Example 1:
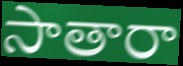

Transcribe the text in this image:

సాతారా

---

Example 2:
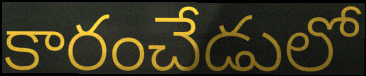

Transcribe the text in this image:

కారంచేడులో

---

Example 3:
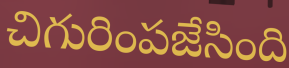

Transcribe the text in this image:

చిగురింపజేసింది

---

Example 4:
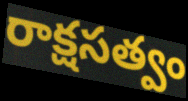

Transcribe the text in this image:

రాక్షసత్వం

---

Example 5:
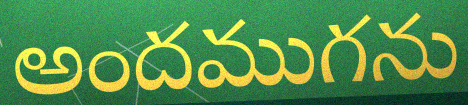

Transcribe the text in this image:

అందముగను